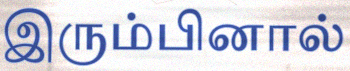
இரும்பினால்